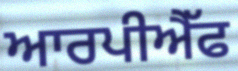
ਆਰਪੀਐੱਫ